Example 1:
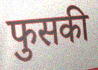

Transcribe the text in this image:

फुसकी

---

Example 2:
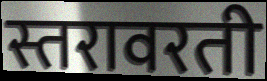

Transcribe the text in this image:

स्तरावरती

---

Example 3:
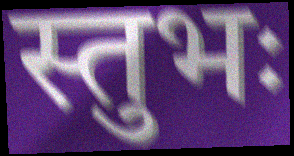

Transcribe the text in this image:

स्तुभः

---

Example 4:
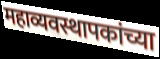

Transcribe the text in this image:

महाव्यवस्थापकांच्या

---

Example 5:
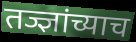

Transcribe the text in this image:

तज्ज्ञांच्याच